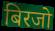
बिरजो